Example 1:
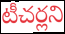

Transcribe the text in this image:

టీచర్లని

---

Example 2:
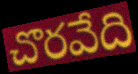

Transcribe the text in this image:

చొరవేది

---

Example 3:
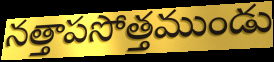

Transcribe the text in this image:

నత్తాపసోత్తముండు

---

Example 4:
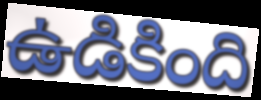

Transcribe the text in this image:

ఉడికింది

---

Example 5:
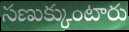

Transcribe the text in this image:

సణుక్కుంటారు